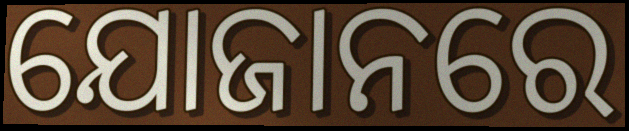
ଯୋଜାନରେ